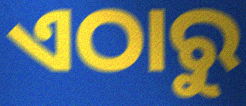
ଏଠାରୁ